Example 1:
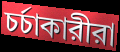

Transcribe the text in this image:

চর্চাকারীরা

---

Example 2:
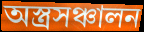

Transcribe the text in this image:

অস্ত্রসঞ্চালন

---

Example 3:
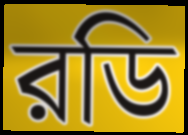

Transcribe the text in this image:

রডি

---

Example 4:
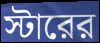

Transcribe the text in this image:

স্টারের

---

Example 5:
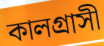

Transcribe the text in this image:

কালগ্রাসী